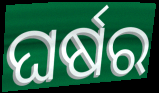
ଘର୍ଷର